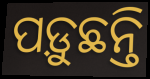
ପଡ଼ୁଛନ୍ତି